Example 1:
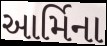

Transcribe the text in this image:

આર્મિના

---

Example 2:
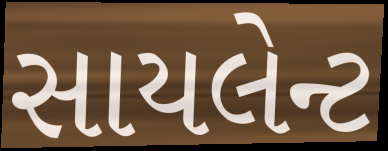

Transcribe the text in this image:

સાયલેન્ટ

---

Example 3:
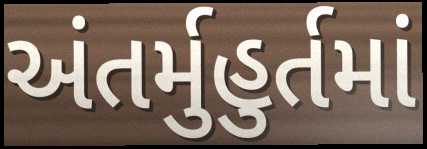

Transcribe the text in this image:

અંતર્મુહુર્તમાં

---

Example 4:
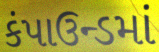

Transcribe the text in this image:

કંપાઉન્ડમાં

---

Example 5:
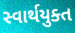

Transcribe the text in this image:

સ્વાર્થયુક્ત